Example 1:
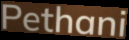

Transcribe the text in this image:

Pethani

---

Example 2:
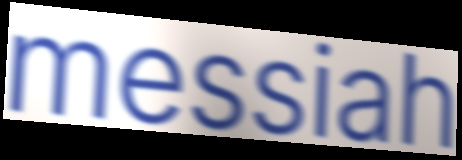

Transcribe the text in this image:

messiah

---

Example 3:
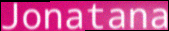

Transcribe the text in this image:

Jonatana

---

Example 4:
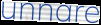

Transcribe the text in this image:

unnare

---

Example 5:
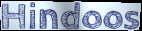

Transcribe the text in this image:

Hindoos